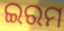
ଇରମ